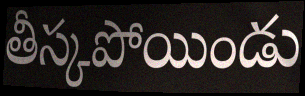
తీస్కపోయిండు